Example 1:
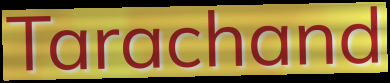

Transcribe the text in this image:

Tarachand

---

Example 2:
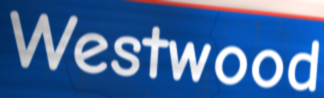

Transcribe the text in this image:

Westwood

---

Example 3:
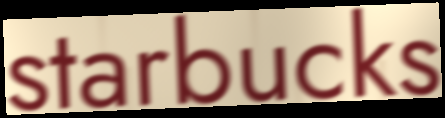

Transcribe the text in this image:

starbucks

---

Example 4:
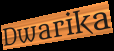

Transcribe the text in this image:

Dwarika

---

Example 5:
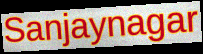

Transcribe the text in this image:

Sanjaynagar